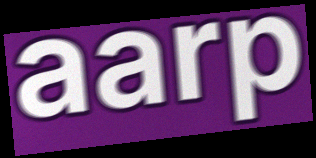
aarp